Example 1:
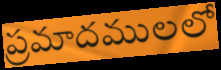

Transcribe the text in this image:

ప్రమాదములలో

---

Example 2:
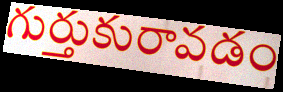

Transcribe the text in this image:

గుర్తుకురావడం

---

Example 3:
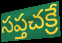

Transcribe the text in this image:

సప్తచక్రే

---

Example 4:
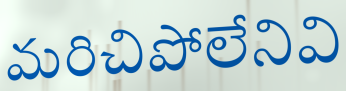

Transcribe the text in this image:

మరిచిపోలేనివి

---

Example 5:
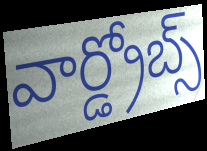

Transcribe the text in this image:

వార్డ్రోబ్స్